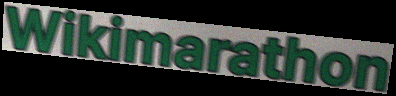
Wikimarathon